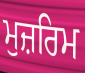
ਮੁਜ਼ਰਿਮ